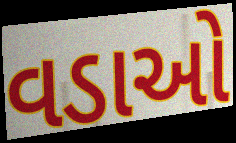
વડાઓ